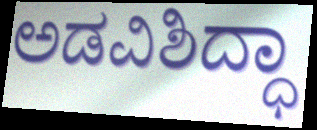
ಅಡವಿಶಿದ್ಧಾ